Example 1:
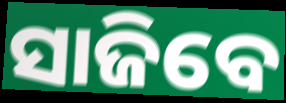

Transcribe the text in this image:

ସାଜିବେ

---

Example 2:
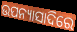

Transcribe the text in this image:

ଉପନ୍ୟାସାଦିରେ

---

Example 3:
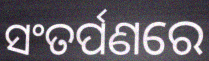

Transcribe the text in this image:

ସଂତର୍ପଣରେ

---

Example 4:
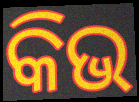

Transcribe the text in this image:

କିଭ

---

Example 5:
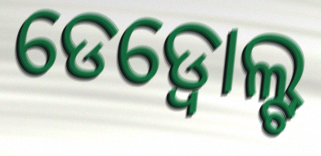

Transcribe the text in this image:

ଡେଡ୍ବୋଲ୍ଟ